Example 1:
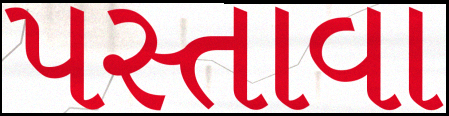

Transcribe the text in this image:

પસ્તાવા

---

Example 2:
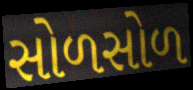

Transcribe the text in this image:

સોળસોળ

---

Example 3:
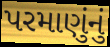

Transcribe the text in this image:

પરમાણુંનું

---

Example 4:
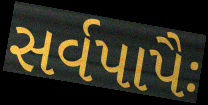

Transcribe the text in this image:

સર્વપાપૈઃ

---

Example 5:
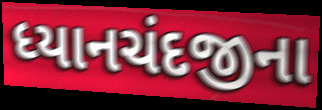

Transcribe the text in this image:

ધ્યાનચંદજીના